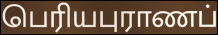
பெரியபுராணப்